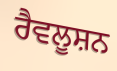
ਰੈਵਲੂਸ਼ਨ